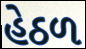
હેઠળ